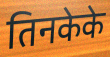
तिनकेके